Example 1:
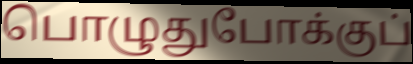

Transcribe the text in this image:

பொழுதுபோக்குப்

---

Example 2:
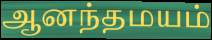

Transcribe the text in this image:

ஆனந்தமயம்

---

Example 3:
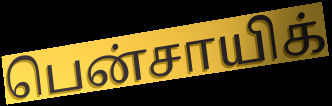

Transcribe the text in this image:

பென்சாயிக்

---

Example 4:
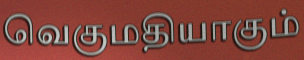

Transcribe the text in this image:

வெகுமதியாகும்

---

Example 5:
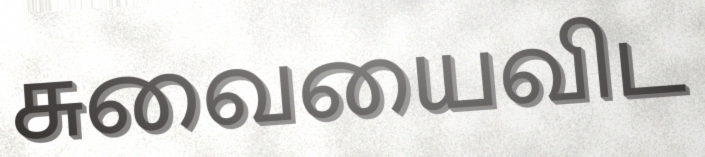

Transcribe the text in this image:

சுவையைவிட